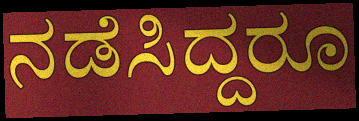
ನಡೆಸಿದ್ದರೂ